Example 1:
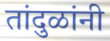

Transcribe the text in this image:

तांदुळांनी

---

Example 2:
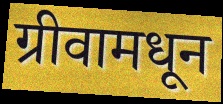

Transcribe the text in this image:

ग्रीवामधून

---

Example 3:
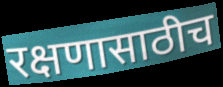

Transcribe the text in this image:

रक्षणासाठीच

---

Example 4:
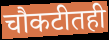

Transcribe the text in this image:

चौकटीतही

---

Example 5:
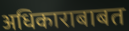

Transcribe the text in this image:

अधिकाराबाबत